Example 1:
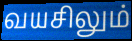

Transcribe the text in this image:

வயசிலும்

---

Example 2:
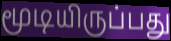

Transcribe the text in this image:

மூடியிருப்பது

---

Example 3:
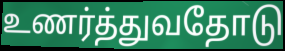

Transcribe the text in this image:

உணர்த்துவதோடு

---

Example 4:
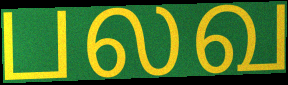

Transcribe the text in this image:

பலவ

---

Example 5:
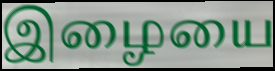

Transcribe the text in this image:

இழையை